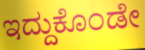
ಇದ್ದುಕೊಂಡೇ